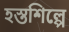
হস্তশিল্পে